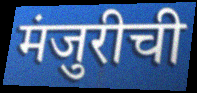
मंजुरीची